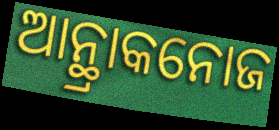
ଆନ୍ଥ୍ରାକନୋଜ